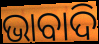
ଭାବାଦି